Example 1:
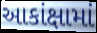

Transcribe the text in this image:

આકાંક્ષામાં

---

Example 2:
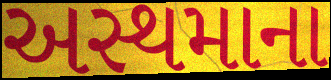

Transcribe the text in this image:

અસ્થમાના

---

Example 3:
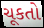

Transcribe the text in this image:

ચૂકતો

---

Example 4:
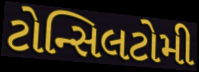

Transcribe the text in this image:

ટોન્સિલટોમી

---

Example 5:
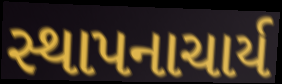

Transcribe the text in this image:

સ્થાપનાચાર્ય